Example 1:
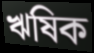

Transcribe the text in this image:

ঋষিক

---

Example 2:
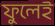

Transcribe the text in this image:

ফুলেই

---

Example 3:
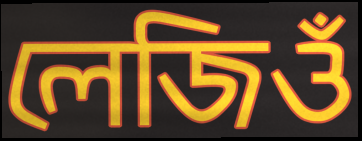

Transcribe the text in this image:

লেজিওঁ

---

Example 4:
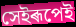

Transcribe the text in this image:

সেইৰূপেই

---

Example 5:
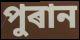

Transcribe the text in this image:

পুৰান